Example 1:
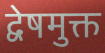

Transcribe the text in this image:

द्वेषमुक्त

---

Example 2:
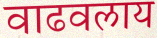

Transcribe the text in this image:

वाढवलाय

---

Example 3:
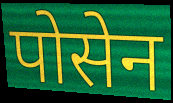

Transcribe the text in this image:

पोसेन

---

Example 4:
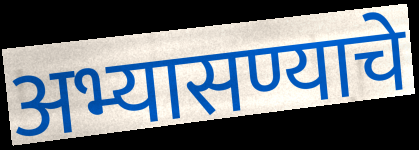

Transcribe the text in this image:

अभ्यासण्याचे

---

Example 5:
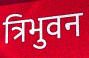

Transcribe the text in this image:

त्रिभुवन